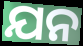
ଯନ